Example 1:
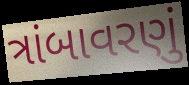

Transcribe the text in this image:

ત્રાંબાવરણું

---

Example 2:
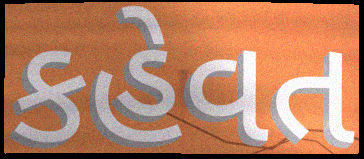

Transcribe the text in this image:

કહેવત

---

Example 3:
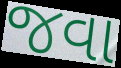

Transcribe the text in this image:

જવા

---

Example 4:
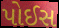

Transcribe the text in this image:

પોઈસ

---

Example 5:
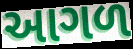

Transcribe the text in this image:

આગળ